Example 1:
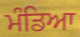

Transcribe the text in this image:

ਮੰਡਿਆ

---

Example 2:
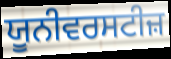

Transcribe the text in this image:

ਯੂਨੀਵਰਸਟੀਜ਼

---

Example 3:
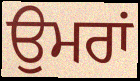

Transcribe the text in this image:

ਉੁਮਰਾਂ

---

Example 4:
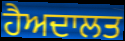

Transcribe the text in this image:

ਹੈਅਦਾਲਤ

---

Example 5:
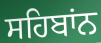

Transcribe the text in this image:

ਸਹਿਬਾਂਨ